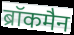
ब्रॉकमैन